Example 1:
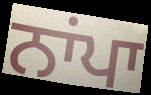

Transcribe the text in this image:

ਨਾਂਪਾ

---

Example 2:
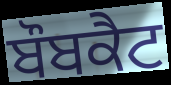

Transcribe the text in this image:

ਬੌਬਕੈਟ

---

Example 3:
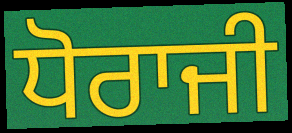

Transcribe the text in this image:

ਧੋਰਾਜੀ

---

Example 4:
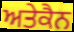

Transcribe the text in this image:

ਅਤੇਕੈਨ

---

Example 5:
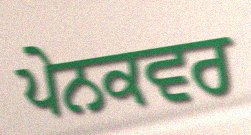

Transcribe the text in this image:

ਪੇਨਕਵਰ